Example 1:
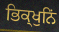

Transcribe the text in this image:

ਭਿਕ੍ਖੁਨਿਂ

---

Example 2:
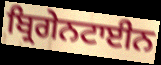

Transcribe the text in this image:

ਬ੍ਰਿਗੇਨਟਾਈਨ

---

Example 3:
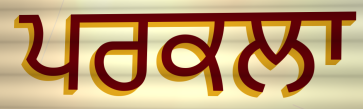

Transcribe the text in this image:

ਪਰਕਲਾ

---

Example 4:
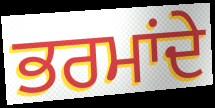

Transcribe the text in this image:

ਭਰਮਾਂਦੇ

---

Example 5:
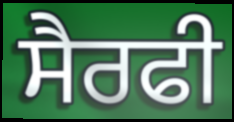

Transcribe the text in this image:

ਸੈਰਫੀ